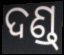
ଦଣ୍ଡ୍